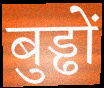
बुड्ढों